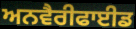
ਅਨਵੈਰੀਫਾਈਡ